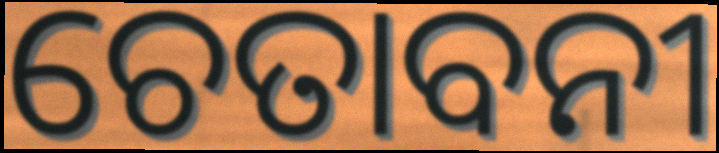
ଚେତାବନୀ